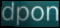
dpon